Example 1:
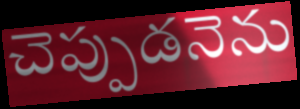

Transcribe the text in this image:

చెప్పుడనెను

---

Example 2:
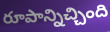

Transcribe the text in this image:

రూపాన్నిచ్చింది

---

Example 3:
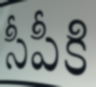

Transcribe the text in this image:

సీపీకి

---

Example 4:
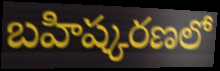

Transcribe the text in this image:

బహిష్కరణలో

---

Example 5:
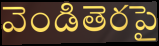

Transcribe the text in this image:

వెండితెరపై